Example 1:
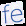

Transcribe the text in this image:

fe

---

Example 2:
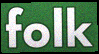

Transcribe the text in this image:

folk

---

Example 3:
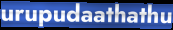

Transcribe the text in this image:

urupudaathathu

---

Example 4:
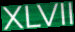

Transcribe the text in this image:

XLVII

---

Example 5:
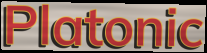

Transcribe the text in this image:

Platonic